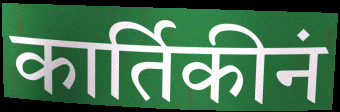
कार्तिकीनं